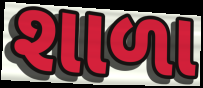
શાળા